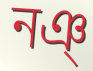
নঞ্